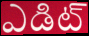
ఎడిట్